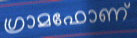
ഗ്രാമഫോണ്